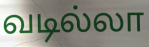
வடில்லா